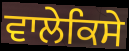
ਵਾਲੇਕਿਸੇ